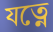
যত্নে